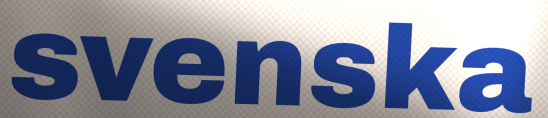
svenska